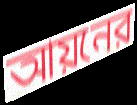
আয়নের